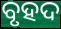
ବୃହଦ